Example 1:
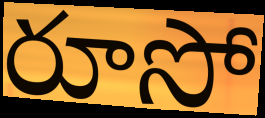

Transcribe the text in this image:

రూసో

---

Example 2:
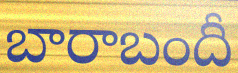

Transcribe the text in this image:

బారాబందీ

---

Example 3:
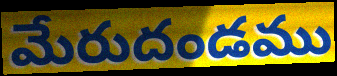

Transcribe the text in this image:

మేరుదండము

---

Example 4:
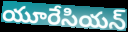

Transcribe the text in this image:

యూరేసియన్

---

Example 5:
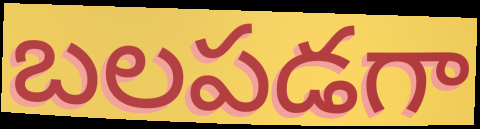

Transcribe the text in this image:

బలపడగా